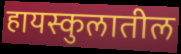
हायस्कुलातील